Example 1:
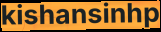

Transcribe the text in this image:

kishansinhp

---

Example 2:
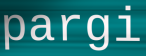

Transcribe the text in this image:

pargi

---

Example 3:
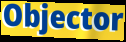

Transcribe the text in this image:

Objector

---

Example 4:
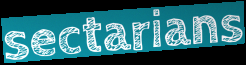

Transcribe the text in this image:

sectarians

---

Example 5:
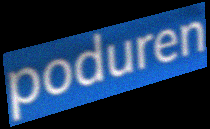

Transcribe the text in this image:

poduren